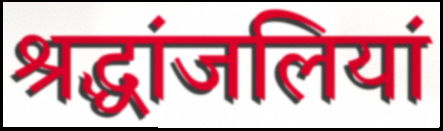
श्रद्धांजलियां